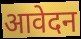
आवेदन